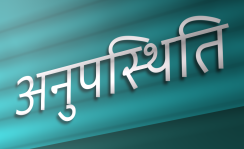
अनुपस्थिति